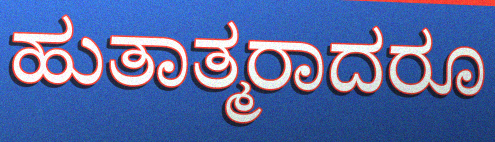
ಹುತಾತ್ಮರಾದರೂ